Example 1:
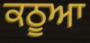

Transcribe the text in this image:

ਕਠੂਆ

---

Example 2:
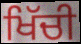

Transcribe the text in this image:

ਖਿੱਚੀ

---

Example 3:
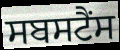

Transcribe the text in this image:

ਸਬਸਟੈਂਸ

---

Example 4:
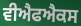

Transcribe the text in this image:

ਵੀਐਫਐਕਸ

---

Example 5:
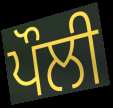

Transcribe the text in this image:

ਪੌਲੀ